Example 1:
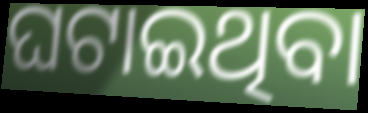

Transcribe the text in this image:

ଘଟାଇଥିବା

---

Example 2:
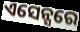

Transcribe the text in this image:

ଏସେନ୍ସରେ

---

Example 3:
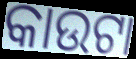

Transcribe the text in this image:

କାଉଟା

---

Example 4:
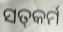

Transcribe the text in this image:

ସତ୍‍କର୍ମ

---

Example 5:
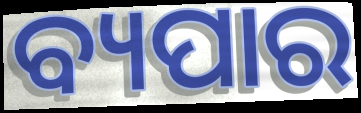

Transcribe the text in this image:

ବ୍ୟପାର